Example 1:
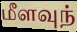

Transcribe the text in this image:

மீளவுந்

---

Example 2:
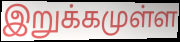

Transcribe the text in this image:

இறுக்கமுள்ள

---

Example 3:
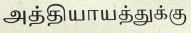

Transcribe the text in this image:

அத்தியாயத்துக்கு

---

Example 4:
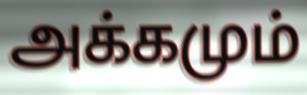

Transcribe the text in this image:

அக்கமும்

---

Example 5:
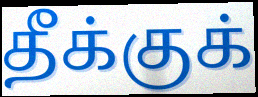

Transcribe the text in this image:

தீக்குக்